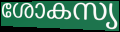
ശോകസ്യ